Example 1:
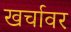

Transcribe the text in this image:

खर्चावर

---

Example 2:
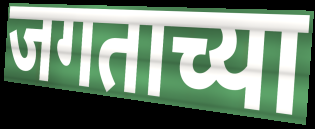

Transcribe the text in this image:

जगताच्या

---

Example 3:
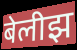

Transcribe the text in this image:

बेलीझ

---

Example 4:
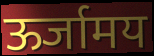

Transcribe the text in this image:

ऊर्जामय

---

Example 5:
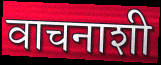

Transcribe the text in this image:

वाचनाशी